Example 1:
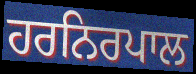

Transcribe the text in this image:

ਹਰਨਿਰਪਾਲ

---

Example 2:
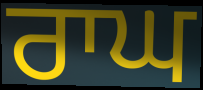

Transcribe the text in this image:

ਰਾਘ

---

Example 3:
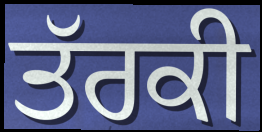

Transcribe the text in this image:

ਤੱਰਕੀ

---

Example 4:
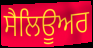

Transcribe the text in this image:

ਸੈਲਿਊਅਰ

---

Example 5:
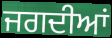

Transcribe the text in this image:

ਜਗਦੀਆਂ